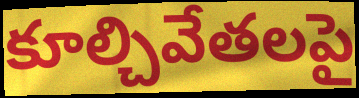
కూల్చివేతలపై